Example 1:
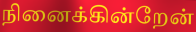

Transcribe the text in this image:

நினைக்கின்றேன்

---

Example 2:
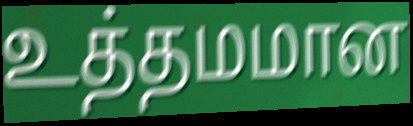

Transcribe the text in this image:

உத்தமமான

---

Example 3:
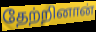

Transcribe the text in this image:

தேற்றினான்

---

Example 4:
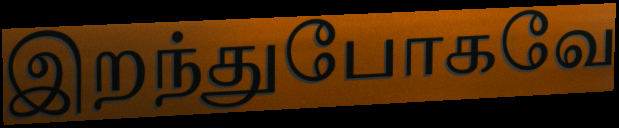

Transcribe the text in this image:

இறந்துபோகவே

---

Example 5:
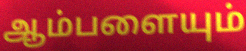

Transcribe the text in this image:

ஆம்பளையும்